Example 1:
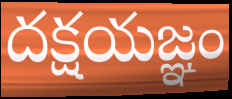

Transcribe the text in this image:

దక్షయజ్ఞం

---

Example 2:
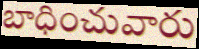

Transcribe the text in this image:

బాధించువారు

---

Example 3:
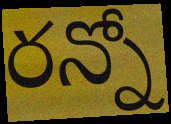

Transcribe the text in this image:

రన్నో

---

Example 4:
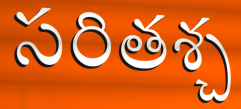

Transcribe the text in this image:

సరితశ్చ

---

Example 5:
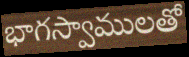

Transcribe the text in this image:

భాగస్వాములతో